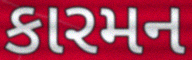
કારમન